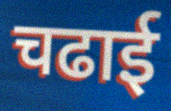
चढाई